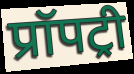
प्रॉपट्री